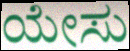
ಯೇಸು